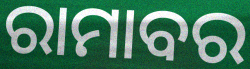
ରାମାବର